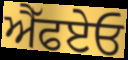
ਐੱਫਏਓ